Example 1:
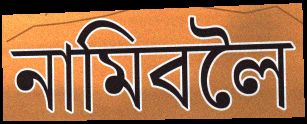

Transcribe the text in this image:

নামিবলৈ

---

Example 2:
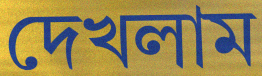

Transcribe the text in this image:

দেখলাম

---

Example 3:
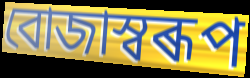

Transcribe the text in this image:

বোজাস্বৰূপ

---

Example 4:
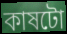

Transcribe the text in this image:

কাষটো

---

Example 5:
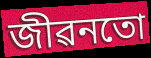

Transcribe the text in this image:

জীৱনতো